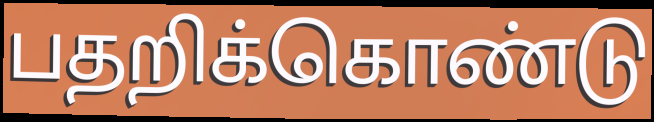
பதறிக்கொண்டு